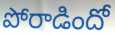
పోరాడిందో